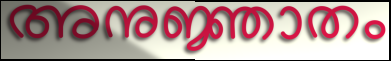
അനുജ്ഞാതം